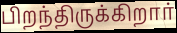
பிறந்திருக்கிறார்